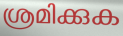
ശ്രമിക്കുക